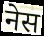
नेस